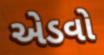
એડવો